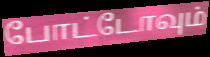
போட்டோவும்